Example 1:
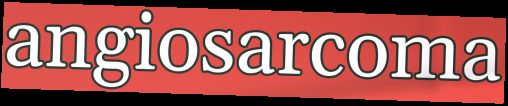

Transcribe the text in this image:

angiosarcoma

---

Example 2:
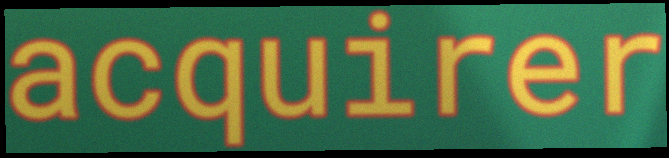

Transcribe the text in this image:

acquirer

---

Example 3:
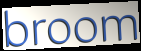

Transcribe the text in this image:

broom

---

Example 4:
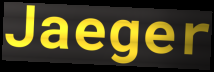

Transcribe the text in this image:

Jaeger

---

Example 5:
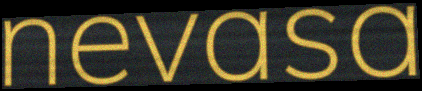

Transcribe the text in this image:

nevasa